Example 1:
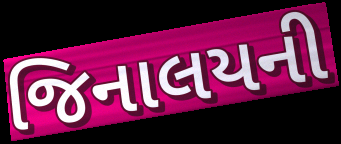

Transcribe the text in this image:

જિનાલયની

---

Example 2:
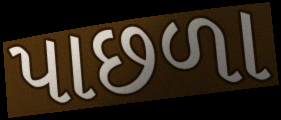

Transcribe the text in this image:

પાછળા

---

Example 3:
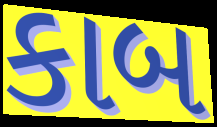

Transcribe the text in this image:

કાબ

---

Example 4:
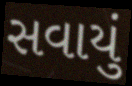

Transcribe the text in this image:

સવાયું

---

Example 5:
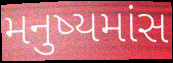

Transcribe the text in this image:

મનુષ્યમાંસ